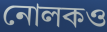
নোলকও